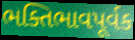
ભક્તિભાવપૂર્વક